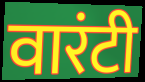
वारंटी